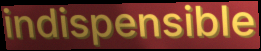
indispensible